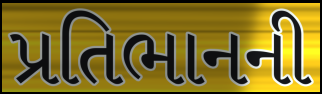
પ્રતિભાનની